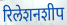
रिलेशनशीप